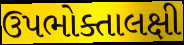
ઉપભોક્તાલક્ષી